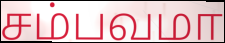
சம்பவமா